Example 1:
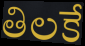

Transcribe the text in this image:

తిలకే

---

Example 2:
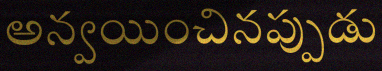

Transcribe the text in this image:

అన్వయించినప్పుడు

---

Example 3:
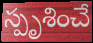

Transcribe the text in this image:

స్పృశించే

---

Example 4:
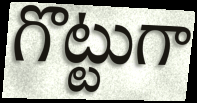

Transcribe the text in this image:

గొట్టుగా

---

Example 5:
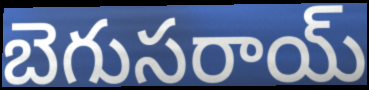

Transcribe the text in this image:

బెగుసరాయ్